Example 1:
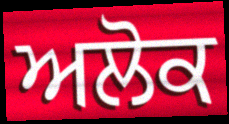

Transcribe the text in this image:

ਅਲੋਕ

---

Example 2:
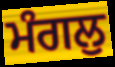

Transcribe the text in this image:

ਮੰਗਲੁ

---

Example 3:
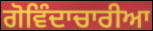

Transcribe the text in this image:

ਗੋਵਿੰਦਾਚਾਰੀਆ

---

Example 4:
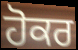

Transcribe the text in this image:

ਹੋਕਰ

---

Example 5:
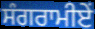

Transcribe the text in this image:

ਸੰਗਰਾਮੀਏਂ